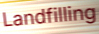
Landfilling